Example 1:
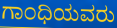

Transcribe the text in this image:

ಗಾಂಧಿಯವರು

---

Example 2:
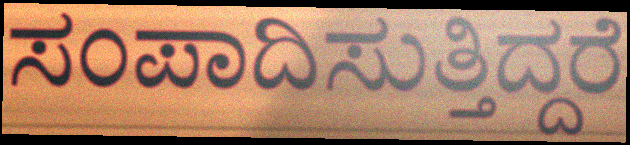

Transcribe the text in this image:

ಸಂಪಾದಿಸುತ್ತಿದ್ದರೆ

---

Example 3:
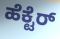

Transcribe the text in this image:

ಹೆಕ್ಟೆರ್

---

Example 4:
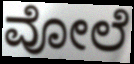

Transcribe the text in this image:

ವೋಲೆ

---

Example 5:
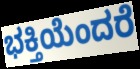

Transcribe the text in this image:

ಭಕ್ತಿಯೆಂದರೆ